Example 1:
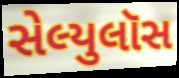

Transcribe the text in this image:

સેલ્યુલૉસ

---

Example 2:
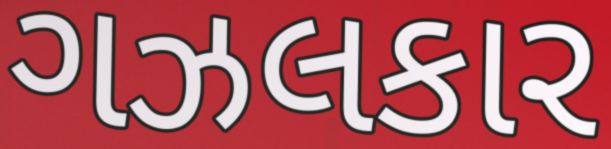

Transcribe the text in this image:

ગઝલકાર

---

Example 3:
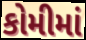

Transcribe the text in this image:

કોમીમાં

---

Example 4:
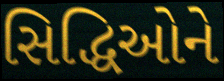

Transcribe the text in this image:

સિદ્ધિઓને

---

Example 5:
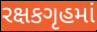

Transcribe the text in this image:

રક્ષકગૃહમાં